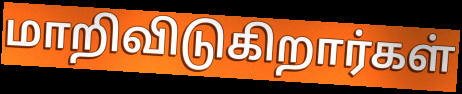
மாறிவிடுகிறார்கள்